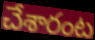
చేశారంట